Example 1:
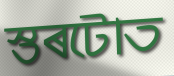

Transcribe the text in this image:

স্তৰটোত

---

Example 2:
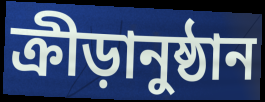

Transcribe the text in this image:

ক্ৰীড়ানুষ্ঠান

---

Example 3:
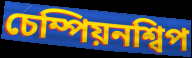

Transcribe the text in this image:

চেম্পিয়নশ্বিপ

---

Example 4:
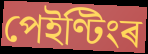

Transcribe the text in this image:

পেইণ্টিংৰ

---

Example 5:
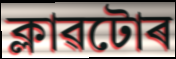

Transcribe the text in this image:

ক্লাৱটোৰ